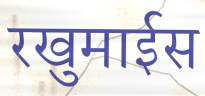
रखुमाईस